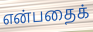
என்பதைக்